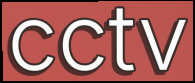
cctv